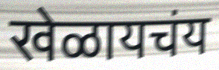
खेळायचंय